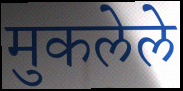
मुकलेले